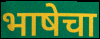
भाषेचा